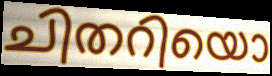
ചിതറിയൊ